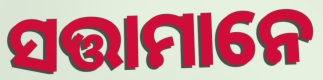
ସତ୍ତାମାନେ